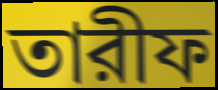
তারীফ